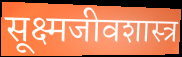
सूक्ष्मजीवशास्त्र